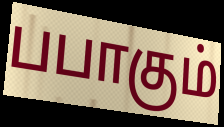
பபாகும்